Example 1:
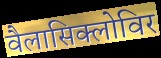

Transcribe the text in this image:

वैलासिक्लोविर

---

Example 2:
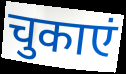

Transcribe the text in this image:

चुकाएं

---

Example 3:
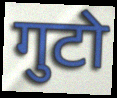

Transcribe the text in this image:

गुटो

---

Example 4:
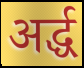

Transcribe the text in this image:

अर्द्ध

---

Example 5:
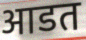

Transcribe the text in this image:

आडत